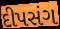
દીપસંગ